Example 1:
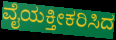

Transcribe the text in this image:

ವೈಯಕ್ತೀಕರಿಸಿದ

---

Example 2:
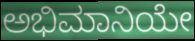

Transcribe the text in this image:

ಅಭಿಮಾನಿಯೇ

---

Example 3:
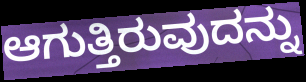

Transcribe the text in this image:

ಆಗುತ್ತಿರುವುದನ್ನು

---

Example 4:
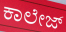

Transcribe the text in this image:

ಕಾಲೇಜ್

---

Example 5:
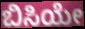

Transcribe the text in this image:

ಬಿಸಿಯೇ